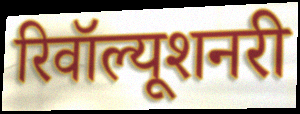
रिवॉल्यूशनरी